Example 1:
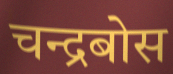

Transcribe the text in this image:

चन्द्रबोस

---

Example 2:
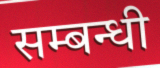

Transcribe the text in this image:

सम्बन्धी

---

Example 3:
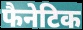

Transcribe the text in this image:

फैनेटिक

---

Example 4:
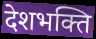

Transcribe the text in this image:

देशभक्ति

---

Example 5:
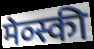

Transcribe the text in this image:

मेव्स्की